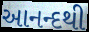
આનન્દથી